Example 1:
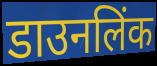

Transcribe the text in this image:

डाउनलिंक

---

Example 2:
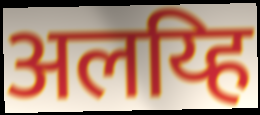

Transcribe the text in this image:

अलय्हि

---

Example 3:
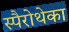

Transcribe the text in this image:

स्पैरोथेका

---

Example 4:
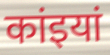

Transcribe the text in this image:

कांइयां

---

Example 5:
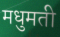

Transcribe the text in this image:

मधुमती